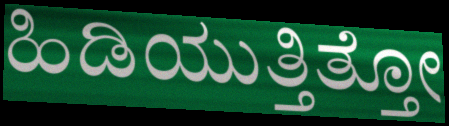
ಹಿಡಿಯುತ್ತಿತ್ತೋ